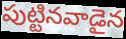
పుట్టినవాడైన